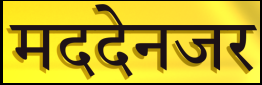
मददेनजर